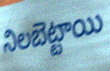
నిలబెట్టాయి